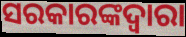
ସରକାରଙ୍କଦ୍ବାରା